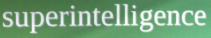
superintelligence